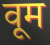
वूम